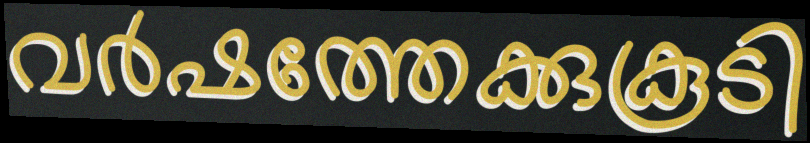
വർഷത്തേക്കുകൂടി